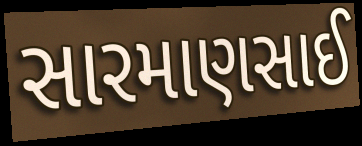
સારમાણસાઈ